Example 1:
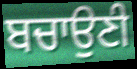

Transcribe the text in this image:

ਬਚਾਉਣੀ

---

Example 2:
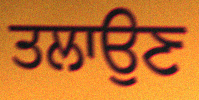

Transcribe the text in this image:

ਤਲਾਉਣ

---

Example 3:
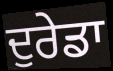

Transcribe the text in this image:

ਦੁਰੇਡਾ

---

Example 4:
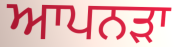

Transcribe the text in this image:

ਆਪਨੜਾ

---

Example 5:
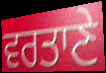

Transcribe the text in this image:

ਵਰਤਾਣੇ